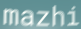
mazhi